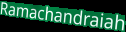
Ramachandraiah